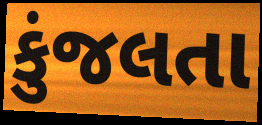
કુંજલતા